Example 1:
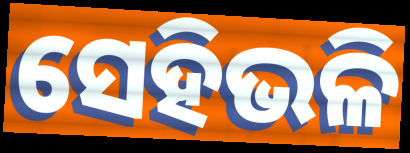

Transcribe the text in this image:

ସେହିଭଳି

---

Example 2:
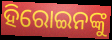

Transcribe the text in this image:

ହିରୋଇନଙ୍କୁ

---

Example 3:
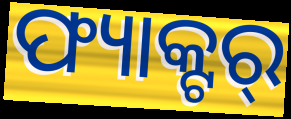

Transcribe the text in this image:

ଫ୍ୟାକ୍ଟର୍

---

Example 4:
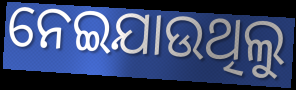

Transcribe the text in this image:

ନେଇଯାଉଥିଲୁ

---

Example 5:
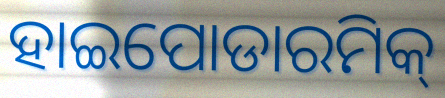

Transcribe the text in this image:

ହାଇପୋଡାରମିକ୍